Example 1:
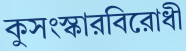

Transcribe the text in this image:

কুসংস্কারবিরোধী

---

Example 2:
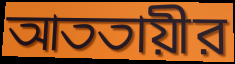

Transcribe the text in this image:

আততায়ীর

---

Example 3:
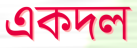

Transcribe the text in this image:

একদল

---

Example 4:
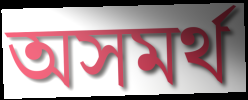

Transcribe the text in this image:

অসমর্থ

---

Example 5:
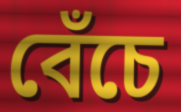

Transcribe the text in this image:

বেঁচে